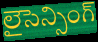
లైసెన్సింగ్